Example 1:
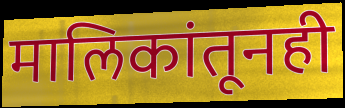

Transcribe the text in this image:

मालिकांतूनही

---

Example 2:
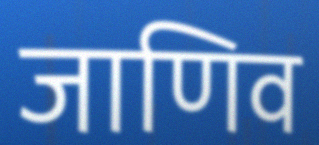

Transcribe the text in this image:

जाणिव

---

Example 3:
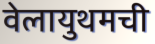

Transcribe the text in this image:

वेलायुथमची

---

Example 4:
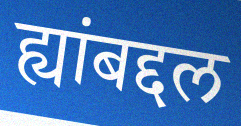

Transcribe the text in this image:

ह्यांबद्दल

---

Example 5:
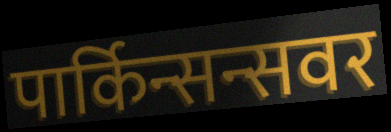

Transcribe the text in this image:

पार्किन्सन्सवर